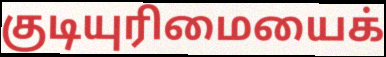
குடியுரிமையைக்